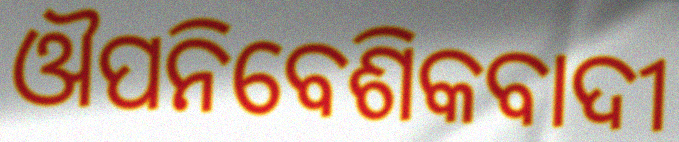
ଔପନିବେଶିକବାଦୀ